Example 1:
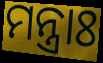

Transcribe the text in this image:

ମନ୍ତ୍ରାଃ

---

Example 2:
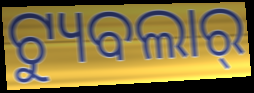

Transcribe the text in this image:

ଟ୍ୟୁବଲାର୍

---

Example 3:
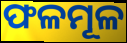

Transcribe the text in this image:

ଫଳମୂଳ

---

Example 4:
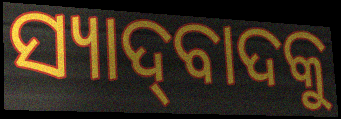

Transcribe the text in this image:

ସ୍ୟାଦ୍‌ବାଦକୁ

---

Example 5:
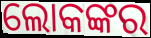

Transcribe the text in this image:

ଲୋକଙ୍କର